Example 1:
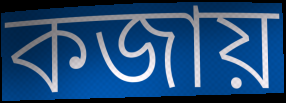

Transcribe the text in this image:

কজায়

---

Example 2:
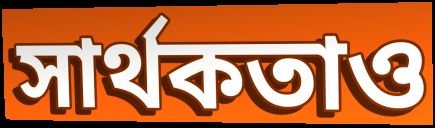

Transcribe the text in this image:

সার্থকতাও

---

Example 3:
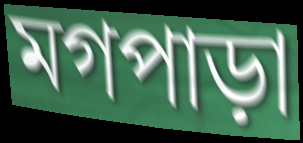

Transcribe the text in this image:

মগপাড়া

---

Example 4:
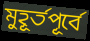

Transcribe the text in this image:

মুহূর্তপূর্বে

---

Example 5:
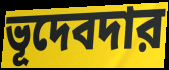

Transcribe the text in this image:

ভূদেবদার